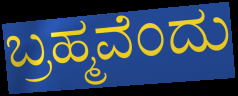
ಬ್ರಹ್ಮವೆಂದು